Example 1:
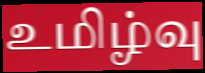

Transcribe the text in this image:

உமிழ்வு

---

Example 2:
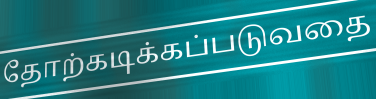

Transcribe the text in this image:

தோற்கடிக்கப்படுவதை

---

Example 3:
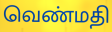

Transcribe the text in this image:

வெண்மதி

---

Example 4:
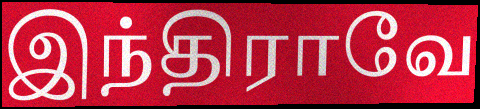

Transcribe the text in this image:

இந்திராவே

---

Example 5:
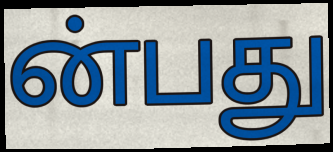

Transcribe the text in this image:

ன்பது